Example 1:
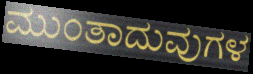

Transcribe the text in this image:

ಮುಂತಾದುವುಗಳ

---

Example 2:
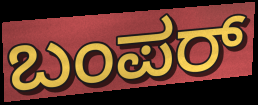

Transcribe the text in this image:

ಬಂಪರ್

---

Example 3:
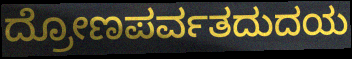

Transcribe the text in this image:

ದ್ರೋಣಪರ್ವತದುದಯ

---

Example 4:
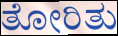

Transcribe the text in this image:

ತೋರಿತು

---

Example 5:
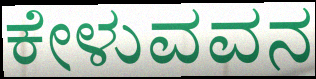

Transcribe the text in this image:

ಕೇಳುವವನ